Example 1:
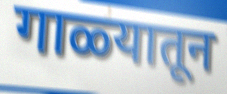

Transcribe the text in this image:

गाळ्यातून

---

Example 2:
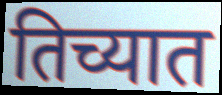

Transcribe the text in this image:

तिच्यात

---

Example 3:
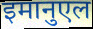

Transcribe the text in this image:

इमानुएल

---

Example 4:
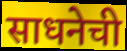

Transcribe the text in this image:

साधनेची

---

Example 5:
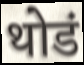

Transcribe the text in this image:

थोडं